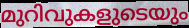
മുറിവുകളുടെയും